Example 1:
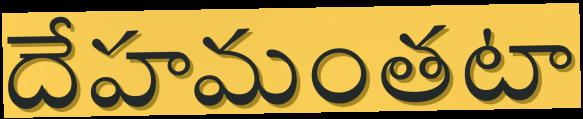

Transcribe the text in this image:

దేహమంతటా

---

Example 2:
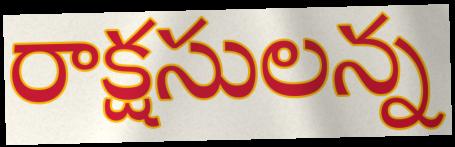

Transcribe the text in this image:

రాక్షసులన్న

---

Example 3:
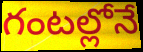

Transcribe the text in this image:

గంటల్లోనే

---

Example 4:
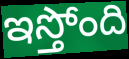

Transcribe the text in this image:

ఇస్తోంది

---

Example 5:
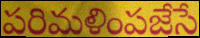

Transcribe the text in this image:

పరిమళింపజేసే